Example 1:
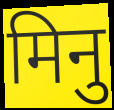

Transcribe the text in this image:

मिनु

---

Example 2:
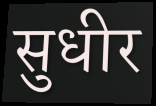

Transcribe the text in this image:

सुधीर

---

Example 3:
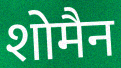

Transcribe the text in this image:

शोमैन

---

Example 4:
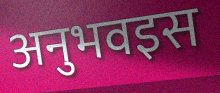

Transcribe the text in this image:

अनुभवइस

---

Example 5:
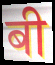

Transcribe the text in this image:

बी